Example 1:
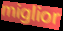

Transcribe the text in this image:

miglior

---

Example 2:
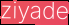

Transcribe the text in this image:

ziyade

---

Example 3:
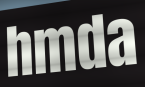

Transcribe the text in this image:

hmda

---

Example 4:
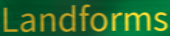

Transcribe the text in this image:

Landforms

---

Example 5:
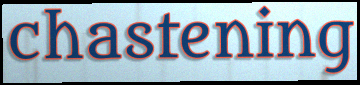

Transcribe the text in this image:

chastening